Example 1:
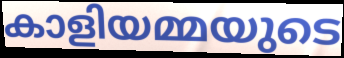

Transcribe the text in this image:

കാളിയമ്മയുടെ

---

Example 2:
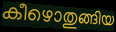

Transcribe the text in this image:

കീഴൊതുങ്ങിയ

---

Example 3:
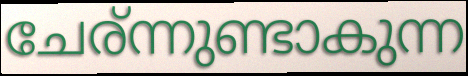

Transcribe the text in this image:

ചേര്ന്നുണ്ടാകുന്ന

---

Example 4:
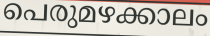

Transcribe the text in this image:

പെരുമഴക്കാലം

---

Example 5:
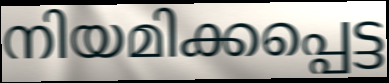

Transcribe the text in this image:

നിയമിക്കപ്പെട്ട